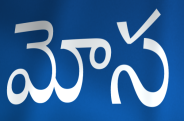
మోస